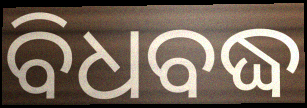
ବିଧବଦ୍ଧ